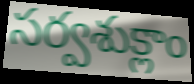
సర్వశుక్లాం